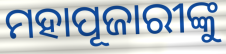
ମହାପୂଜାରୀଙ୍କୁ